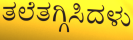
ತಲೆತಗ್ಗಿಸಿದಳು